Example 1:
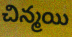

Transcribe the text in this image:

చిన్మయి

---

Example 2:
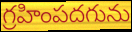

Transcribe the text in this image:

గ్రహింపదగును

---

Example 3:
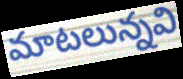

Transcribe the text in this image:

మాటలున్నవి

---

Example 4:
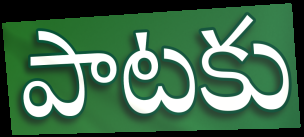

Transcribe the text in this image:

పాటకు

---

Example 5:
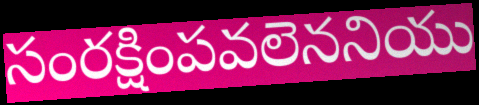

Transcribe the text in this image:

సంరక్షింపవలెననియు